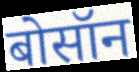
बोसॉन